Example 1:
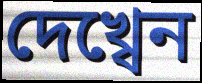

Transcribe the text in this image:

দেখ্বেন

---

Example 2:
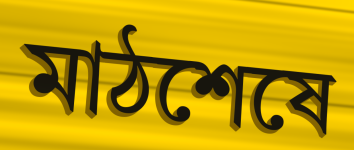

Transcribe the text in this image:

মাঠশেষে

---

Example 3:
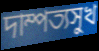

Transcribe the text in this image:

দাম্পত্যসুখ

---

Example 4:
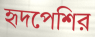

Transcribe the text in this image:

হৃদপেশির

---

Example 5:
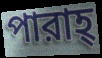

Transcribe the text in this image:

পারাহ্